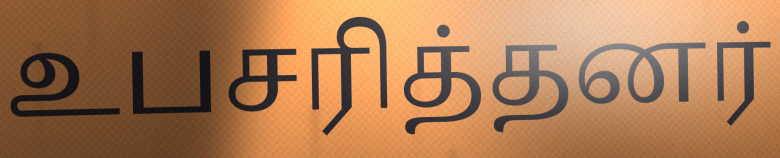
உபசரித்தனர்